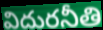
విదురనీతి